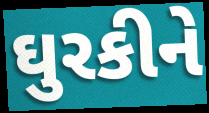
ઘુરકીને